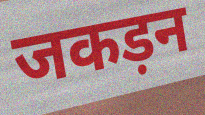
जकड़न